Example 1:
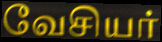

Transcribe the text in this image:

வேசியர்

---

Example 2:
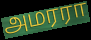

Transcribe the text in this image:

அமரரா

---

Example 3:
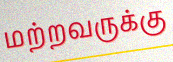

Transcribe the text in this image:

மற்றவருக்கு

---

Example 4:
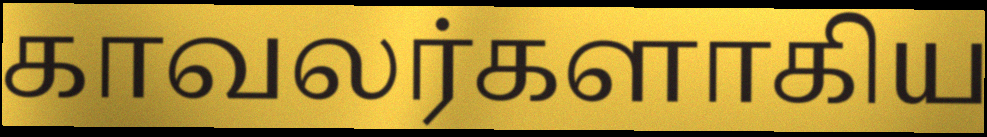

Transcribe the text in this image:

காவலர்களாகிய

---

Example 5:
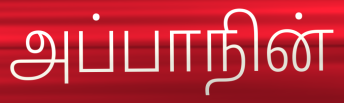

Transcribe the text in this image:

அப்பாநின்